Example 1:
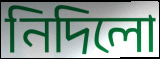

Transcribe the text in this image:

নিদিলো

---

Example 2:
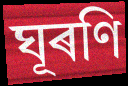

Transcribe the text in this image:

ঘূৰণি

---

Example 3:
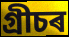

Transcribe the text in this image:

গ্ৰীচৰ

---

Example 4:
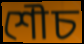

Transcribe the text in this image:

শৌচ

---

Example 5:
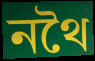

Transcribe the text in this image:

নথৈ